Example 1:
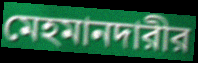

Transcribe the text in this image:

মেহমানদারীর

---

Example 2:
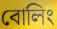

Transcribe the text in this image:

বোলিং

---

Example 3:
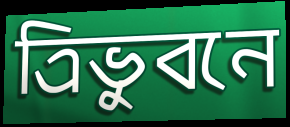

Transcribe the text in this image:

ত্রিভুবনে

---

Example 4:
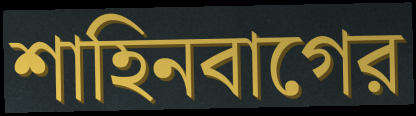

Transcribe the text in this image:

শাহিনবাগের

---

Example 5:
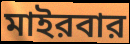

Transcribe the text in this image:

মাইরবার